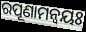
ରପୂଣାମନ୍ଵୟଃ